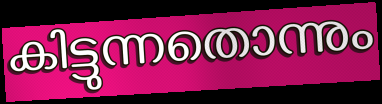
കിട്ടുന്നതൊന്നും